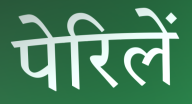
पेरिलें